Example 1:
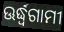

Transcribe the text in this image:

ଊର୍ଦ୍ଧ୍ଵଗାମୀ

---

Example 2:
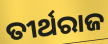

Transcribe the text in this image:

ତୀର୍ଥରାଜ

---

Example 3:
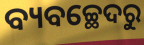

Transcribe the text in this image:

ବ୍ୟବଚ୍ଛେଦରୁ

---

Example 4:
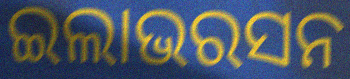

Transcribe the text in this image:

ଇଲାଭରସନ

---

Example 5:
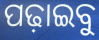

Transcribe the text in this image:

ପଢ଼ାଇବୁ